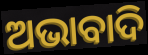
ଅଭାବାଦି